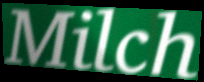
Milch